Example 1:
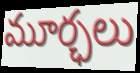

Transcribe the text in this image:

మూర్ఛలు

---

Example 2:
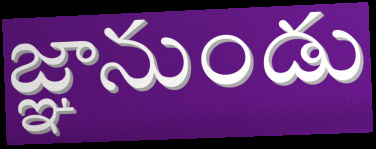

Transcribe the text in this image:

జ్ఞానుండు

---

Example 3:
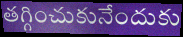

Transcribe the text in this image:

తగ్గించుకునేందుకు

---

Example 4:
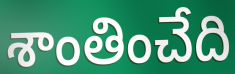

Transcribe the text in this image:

శాంతించేది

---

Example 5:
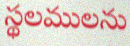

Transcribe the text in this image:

స్థలములను